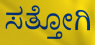
ಸತ್ತೋಗಿ